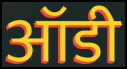
ऑडी